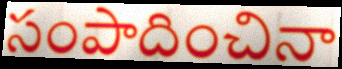
సంపాదించినా